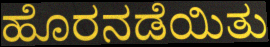
ಹೊರನಡೆಯಿತು